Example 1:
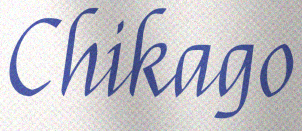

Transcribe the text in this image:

Chikago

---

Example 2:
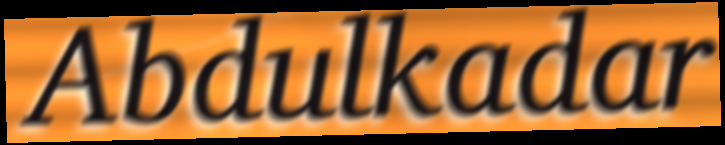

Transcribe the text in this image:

Abdulkadar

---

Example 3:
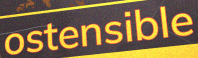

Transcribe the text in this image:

ostensible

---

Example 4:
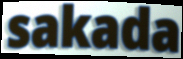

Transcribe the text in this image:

sakada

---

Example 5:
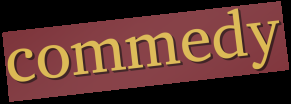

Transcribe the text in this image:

commedy